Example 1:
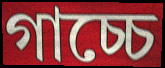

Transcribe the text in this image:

গাচ্চে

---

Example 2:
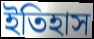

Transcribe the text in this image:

ইতিহাস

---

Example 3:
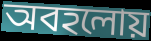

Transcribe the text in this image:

অবহলোয়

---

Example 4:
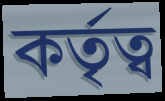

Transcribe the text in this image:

কর্তৃত্ব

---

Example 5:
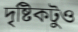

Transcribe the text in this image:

দৃষ্টিকটুও